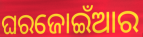
ଘରଜୋଇଁଆର